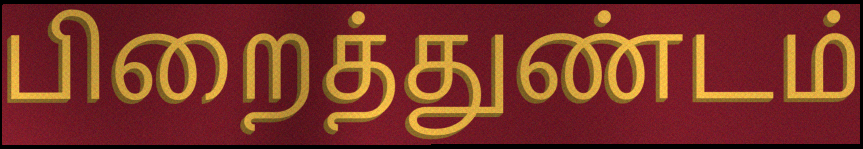
பிறைத்துண்டம்